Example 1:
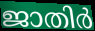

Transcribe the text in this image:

ജാതിർ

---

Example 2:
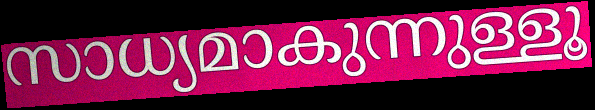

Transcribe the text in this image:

സാധ്യമാകുന്നുള്ളൂ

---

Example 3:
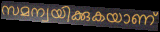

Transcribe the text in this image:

സമന്വയിക്കുകയാണ്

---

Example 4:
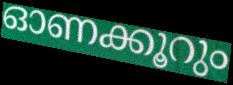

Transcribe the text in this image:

ഓണക്കൂറും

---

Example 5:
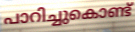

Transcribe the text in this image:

പാറിച്ചുകൊണ്ട്